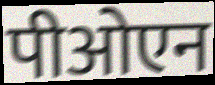
पीओएन